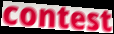
contest